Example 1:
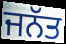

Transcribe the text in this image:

ਜਨੱਤ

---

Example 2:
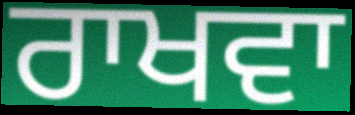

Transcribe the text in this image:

ਰਾਖਵਾ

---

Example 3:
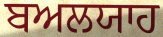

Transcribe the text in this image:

ਬਅਲਯਾਹ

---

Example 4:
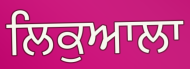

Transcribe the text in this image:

ਲਿਕੁਆਲਾ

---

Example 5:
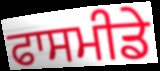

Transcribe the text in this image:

ਫਾਸਮੀਡੇ